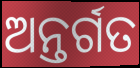
ଅନ୍ତର୍ଗତ